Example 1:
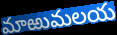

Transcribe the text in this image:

మాఱుమలయ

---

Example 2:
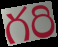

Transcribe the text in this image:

గరి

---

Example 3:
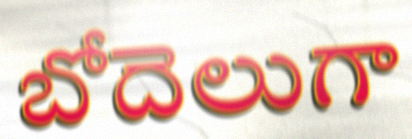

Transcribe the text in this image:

బోదెలుగా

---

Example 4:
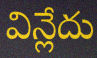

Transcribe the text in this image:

విన్లేదు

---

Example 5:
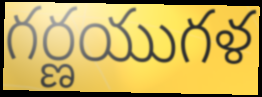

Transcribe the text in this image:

గర్ణయుగళ